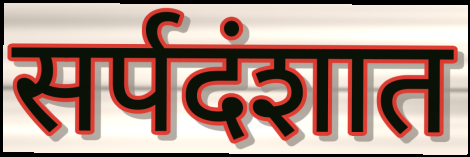
सर्पदंशात